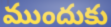
ముందుకు